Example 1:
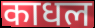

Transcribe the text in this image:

काधल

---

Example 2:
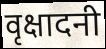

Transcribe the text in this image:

वृक्षादनी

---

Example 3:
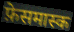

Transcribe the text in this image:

फ़ेसमास्क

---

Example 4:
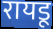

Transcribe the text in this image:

रायडू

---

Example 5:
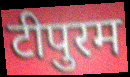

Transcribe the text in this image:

टीपुरम